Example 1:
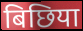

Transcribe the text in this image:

बिछिया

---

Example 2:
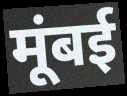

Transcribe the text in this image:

मूंबई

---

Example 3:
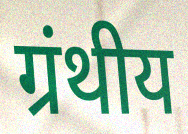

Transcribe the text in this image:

ग्रंथीय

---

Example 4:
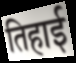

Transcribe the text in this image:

तिहाई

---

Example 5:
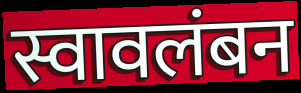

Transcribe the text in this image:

स्वावलंबन